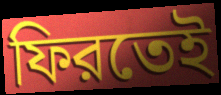
ফিরতেই